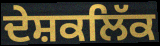
ਦੇਸ਼ਕਲਿੱਕ